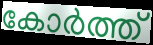
കോർത്ത്